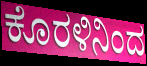
ಕೊರಳಿನಿಂದ